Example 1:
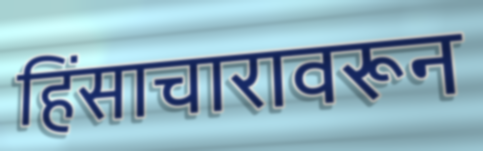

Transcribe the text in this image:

हिंसाचारावरून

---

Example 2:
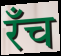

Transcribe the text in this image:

रँच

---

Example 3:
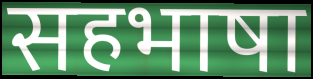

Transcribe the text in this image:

सहभाषा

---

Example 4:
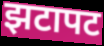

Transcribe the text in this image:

झटापट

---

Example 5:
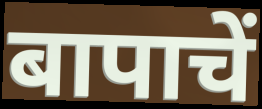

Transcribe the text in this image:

बापाचें